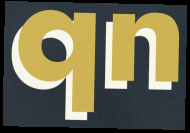
qn